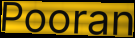
Pooran